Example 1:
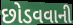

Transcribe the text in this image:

છોડવવાની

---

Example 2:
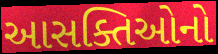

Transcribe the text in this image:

આસક્તિઓનો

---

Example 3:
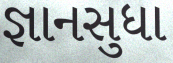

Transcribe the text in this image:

જ્ઞાનસુધા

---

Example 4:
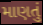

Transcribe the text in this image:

માણતું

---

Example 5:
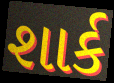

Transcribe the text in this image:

શાર્ક